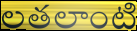
లతలాంటి